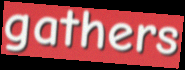
gathers